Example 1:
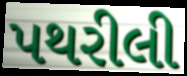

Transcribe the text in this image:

પથરીલી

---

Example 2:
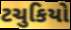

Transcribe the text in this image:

ટચુકિયો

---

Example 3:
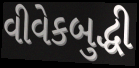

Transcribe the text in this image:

વીવેકબુદ્ધી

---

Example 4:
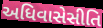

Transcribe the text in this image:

અધિવાસેસીતિ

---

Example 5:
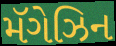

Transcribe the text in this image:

મૅગેઝિન